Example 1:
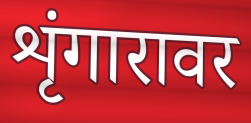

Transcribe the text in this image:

शृंगारावर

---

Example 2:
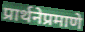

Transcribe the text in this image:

प्रार्थनेप्रमाणे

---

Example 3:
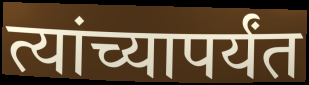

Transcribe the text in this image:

त्यांच्यापर्यंत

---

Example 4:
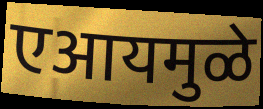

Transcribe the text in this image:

एआयमुळे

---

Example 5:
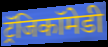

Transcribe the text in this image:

ट्रॅजिकॉमेडी